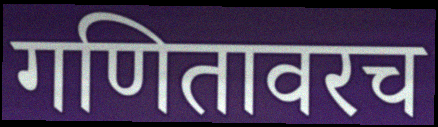
गणितावरच